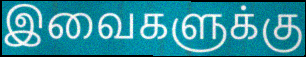
இவைகளுக்கு